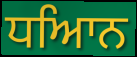
ਧਆਿਨ